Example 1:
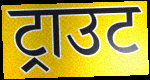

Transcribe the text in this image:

ट्राउट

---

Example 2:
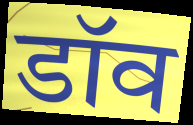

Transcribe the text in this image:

डॉव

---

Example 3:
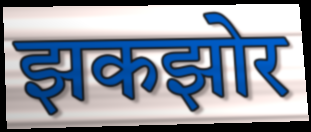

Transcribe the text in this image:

झकझोर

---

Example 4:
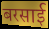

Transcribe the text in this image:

बरसाई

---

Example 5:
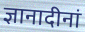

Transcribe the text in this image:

ज्ञानादीनां